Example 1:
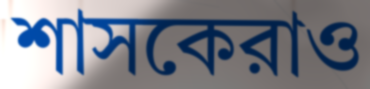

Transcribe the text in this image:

শাসকেরাও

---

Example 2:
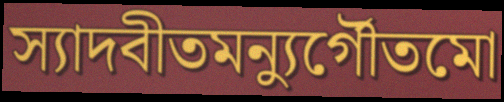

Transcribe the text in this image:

স্যাদবীতমন্যুর্গৌতমো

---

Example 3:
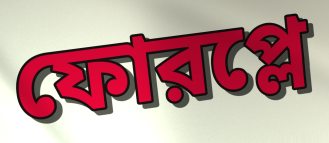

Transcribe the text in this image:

ফোরপ্লে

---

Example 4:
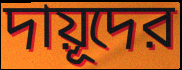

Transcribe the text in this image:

দায়ূদের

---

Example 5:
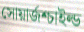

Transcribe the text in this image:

সোয়ার্জশ্চাইল্ড